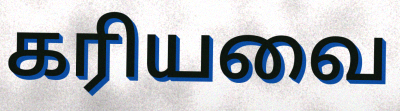
கரியவை